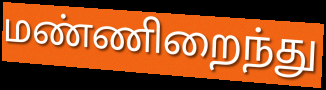
மண்ணிறைந்து